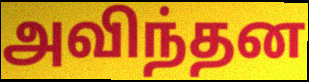
அவிந்தன